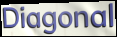
Diagonal